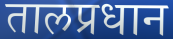
तालप्रधान